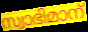
സ്വാഭിമാന്